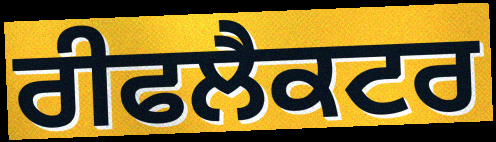
ਰੀਫਲੈਕਟਰ